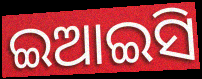
ଇଆଇସି